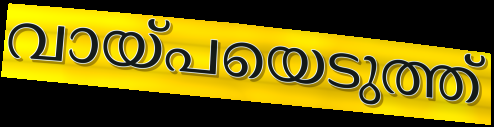
വായ്പയെടുത്ത്